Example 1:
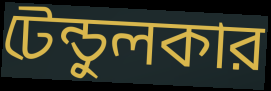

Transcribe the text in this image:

টেন্ডুলকার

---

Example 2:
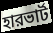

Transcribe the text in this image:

হারভার্ট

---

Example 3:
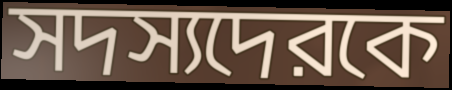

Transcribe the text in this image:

সদস্যদেরকে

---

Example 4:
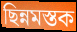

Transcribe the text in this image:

ছিন্নমস্তক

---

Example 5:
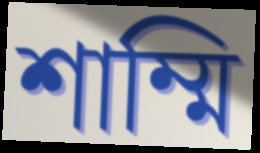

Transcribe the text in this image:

শাম্মি